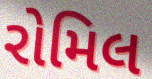
રોમિલ